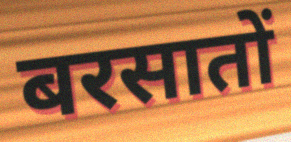
बरसातों